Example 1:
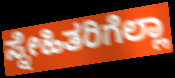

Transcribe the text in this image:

ಸ್ನೇಹಿತರಿಗೆಲ್ಲಾ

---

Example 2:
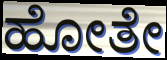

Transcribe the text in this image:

ಹೋತೇ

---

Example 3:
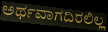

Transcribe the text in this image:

ಅರ್ಥವಾಗದಿರಲಿಲ್ಲ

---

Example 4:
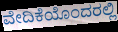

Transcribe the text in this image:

ವೇದಿಕೆಯೊಂದರಲ್ಲಿ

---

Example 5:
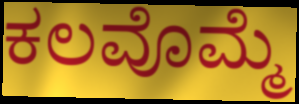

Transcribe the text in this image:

ಕಲವೊಮ್ಮೆ